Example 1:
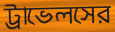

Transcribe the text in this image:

ট্রাভেলসের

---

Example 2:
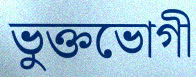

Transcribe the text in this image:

ভুক্তভোগী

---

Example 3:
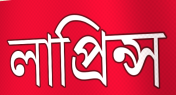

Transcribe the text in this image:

লাপ্রিন্স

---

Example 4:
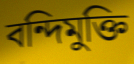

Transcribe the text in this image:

বন্দিমুক্তি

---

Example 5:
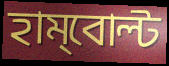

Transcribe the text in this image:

হাম্‌বোল্ট